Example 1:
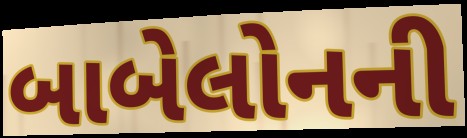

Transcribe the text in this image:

બાબેલોનની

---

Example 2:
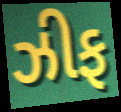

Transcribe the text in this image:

ઝીફ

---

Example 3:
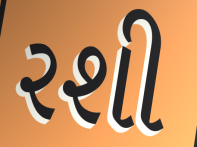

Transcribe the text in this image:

રશી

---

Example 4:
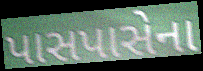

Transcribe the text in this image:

પાસપાસેના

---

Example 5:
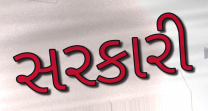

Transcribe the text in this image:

સરકારી